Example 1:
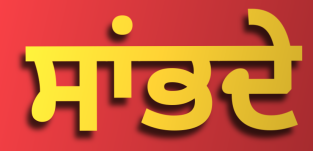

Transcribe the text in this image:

ਸਾਂਭਦੇ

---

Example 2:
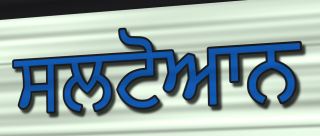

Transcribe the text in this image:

ਸਲਟੋਆਨ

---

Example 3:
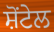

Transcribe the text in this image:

ਸ਼ੋਂਟੇਲ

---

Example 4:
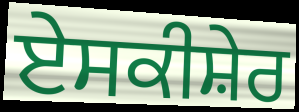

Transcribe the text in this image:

ਏਸਕੀਸ਼ੇਰ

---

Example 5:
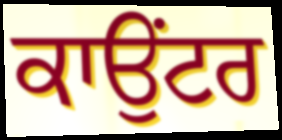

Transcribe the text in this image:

ਕਾਉਂਟਰ